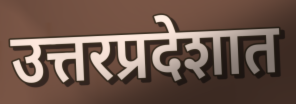
उत्तरप्रदेशात